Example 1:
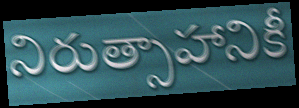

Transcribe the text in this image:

నిరుత్సాహానికీ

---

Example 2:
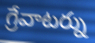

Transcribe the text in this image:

గ్రేవాటర్ను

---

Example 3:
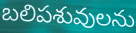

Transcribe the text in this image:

బలిపశువులను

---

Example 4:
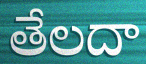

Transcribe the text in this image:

తేలదా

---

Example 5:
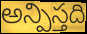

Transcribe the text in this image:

అన్పిస్తది